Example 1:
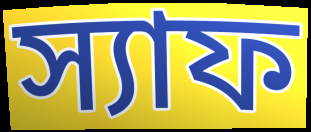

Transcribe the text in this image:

স্যাফ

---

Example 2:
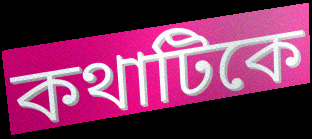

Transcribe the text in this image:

কথাটিকে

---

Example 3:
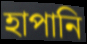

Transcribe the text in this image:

হাপানি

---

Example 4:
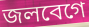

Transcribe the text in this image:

জলবেগে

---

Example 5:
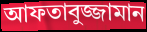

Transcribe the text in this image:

আফতাবুজ্জামান